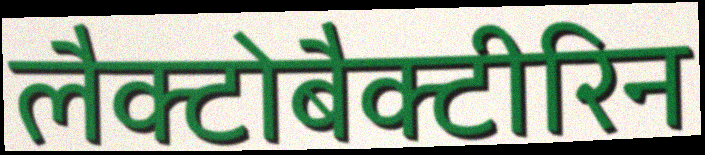
लैक्टोबैक्टीरिन